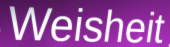
Weisheit